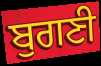
ਬੁਗਣੀ